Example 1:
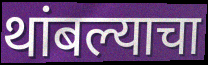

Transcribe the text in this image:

थांबल्याचा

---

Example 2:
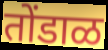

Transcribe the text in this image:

तोंडाळ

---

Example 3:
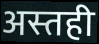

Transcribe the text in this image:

अस्तही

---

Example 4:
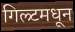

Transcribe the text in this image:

गिल्टमधून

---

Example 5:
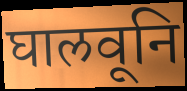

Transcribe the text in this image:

घालवूनि